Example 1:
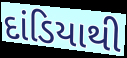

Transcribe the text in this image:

દાંડિયાથી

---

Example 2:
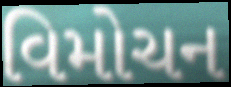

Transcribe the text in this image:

વિમોચન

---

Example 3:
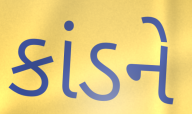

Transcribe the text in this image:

કાંડને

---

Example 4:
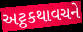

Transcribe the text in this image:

અટ્ઠકથાવચને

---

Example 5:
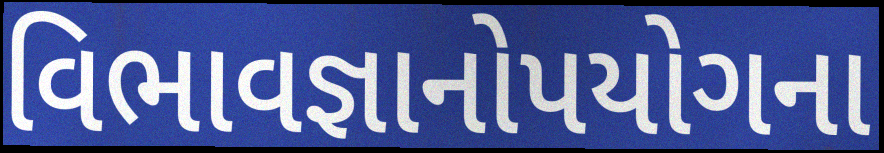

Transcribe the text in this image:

વિભાવજ્ઞાનોપયોગના